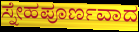
ಸ್ನೇಹಪೂರ್ಣವಾದ